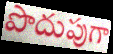
పొదుపుగా